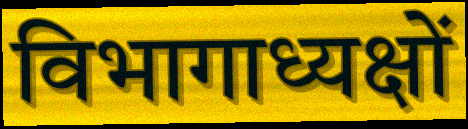
विभागाध्यक्षों